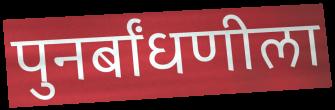
पुनर्बांधणीला